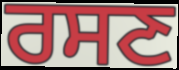
ਰਸਣ